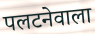
पलटनेवाला